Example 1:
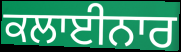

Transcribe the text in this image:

ਕਲਾਈਨਾਰ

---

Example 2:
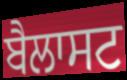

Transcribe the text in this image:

ਬੈਲਾਸਟ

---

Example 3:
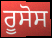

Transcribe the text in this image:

ਰੂਸੋਸ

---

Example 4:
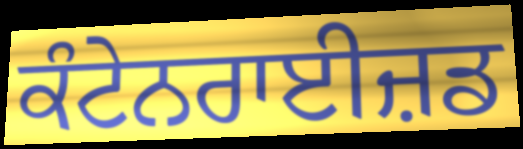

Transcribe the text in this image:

ਕੰਟੇਨਰਾਈਜ਼ਡ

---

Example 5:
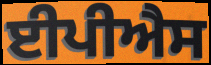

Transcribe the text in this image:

ਈਪੀਐਸ